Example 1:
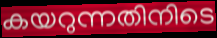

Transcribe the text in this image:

കയറുന്നതിനിടെ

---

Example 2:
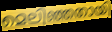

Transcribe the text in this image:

മെലിഞ്ഞതായി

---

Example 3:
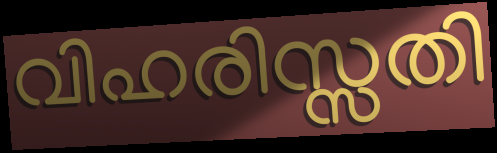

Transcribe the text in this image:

വിഹരിസ്സതി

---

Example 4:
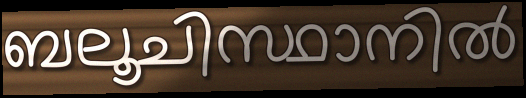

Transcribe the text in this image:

ബലൂചിസ്ഥാനിൽ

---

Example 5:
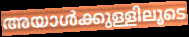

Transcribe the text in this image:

അയാൾക്കുള്ളിലൂടെ